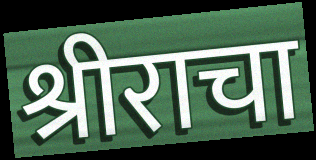
श्रीराचा